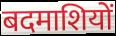
बदमाशियों